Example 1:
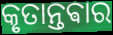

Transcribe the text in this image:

କୃତାନ୍ତଵାର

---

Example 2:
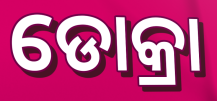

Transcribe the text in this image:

ଡୋକ୍ରା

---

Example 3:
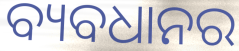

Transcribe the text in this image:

ବ୍ୟବଧାନର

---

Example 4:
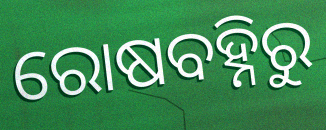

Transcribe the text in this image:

ରୋଷବହ୍ନିରୁ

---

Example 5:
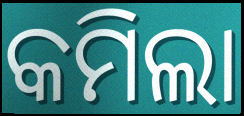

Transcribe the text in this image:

କମିଲା